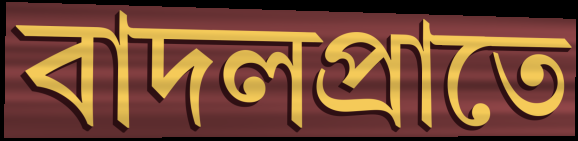
বাদলপ্রাতে